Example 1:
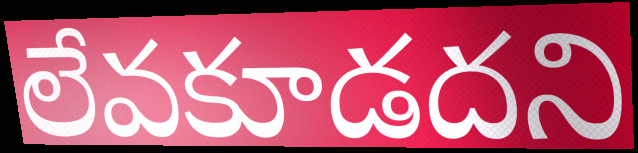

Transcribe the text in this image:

లేవకూడదని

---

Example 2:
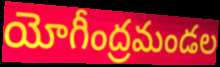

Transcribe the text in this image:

యోగీంద్రమండల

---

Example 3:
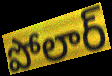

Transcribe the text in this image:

పోలార్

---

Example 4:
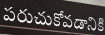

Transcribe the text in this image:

పరుచుకోవడానికి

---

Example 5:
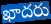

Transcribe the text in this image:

ఖాదరు